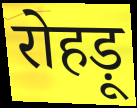
रोहड़ू